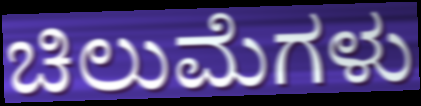
ಚಿಲುಮೆಗಳು